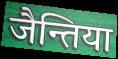
जैन्तिया